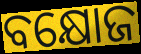
ବକ୍ଷୋଜ